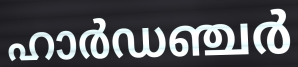
ഹാർഡഞ്ചർ